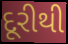
દૂરીથી